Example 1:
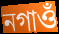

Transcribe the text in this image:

নগাওঁ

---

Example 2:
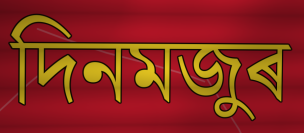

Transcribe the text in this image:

দিনমজুৰ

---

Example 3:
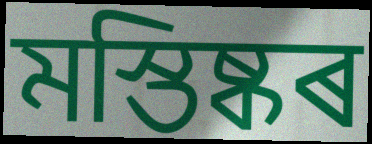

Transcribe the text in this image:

মস্তিষ্কৰ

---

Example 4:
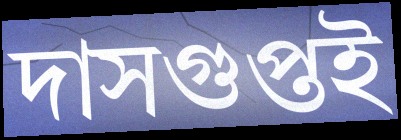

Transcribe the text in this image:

দাসগুপ্তই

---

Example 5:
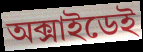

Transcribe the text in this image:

অক্সাইডেই